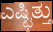
ಎಷ್ಟಿತ್ತು